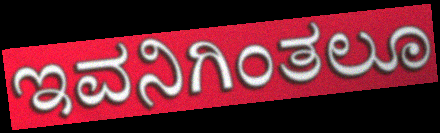
ಇವನಿಗಿಂತಲೂ